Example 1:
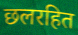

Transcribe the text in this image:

छलरहित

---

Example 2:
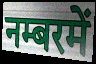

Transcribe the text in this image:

नम्बरमें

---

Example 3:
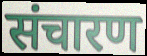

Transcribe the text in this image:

संचारण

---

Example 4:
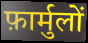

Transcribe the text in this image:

फ़ार्मुलों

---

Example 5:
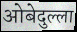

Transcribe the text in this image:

ओबेदुल्ला